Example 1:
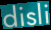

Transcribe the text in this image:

disli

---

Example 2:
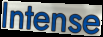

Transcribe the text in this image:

Intense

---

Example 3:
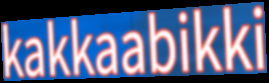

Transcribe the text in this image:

kakkaabikki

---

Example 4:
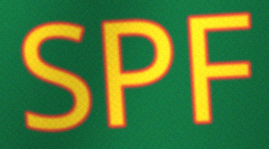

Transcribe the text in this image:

SPF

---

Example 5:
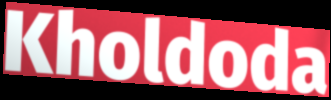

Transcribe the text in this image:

Kholdoda